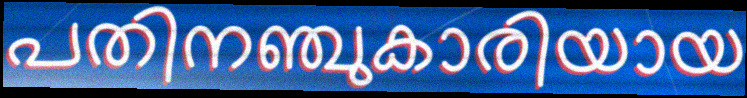
പതിനഞ്ചുകാരിയായ